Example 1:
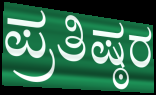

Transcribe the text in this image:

ಪ್ರತಿಷ್ಠರ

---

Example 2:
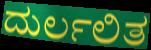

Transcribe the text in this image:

ದುರ್ಲಲಿತ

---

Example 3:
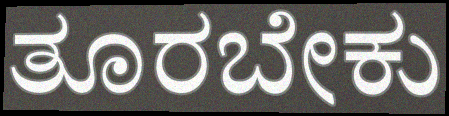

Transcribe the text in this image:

ತೂರಬೇಕು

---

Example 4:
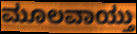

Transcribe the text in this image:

ಮೂಲವಾಯ್ತು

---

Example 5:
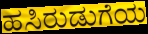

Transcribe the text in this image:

ಹಸಿರುಡುಗೆಯ